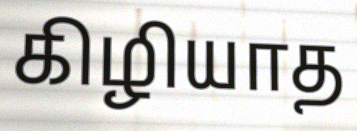
கிழியாத